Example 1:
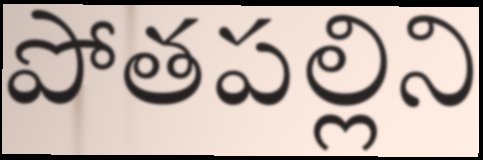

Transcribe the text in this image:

పోతపల్లిని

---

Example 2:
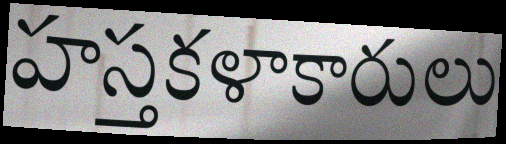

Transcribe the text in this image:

హస్తకళాకారులు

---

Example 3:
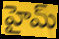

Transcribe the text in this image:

హైమ్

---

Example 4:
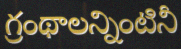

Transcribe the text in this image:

గ్రంథాలన్నింటినీ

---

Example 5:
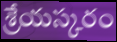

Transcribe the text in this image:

శ్రేయస్కరం